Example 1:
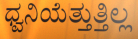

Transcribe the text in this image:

ಧ್ವನಿಯೆತ್ತುತ್ತಿಲ್ಲ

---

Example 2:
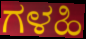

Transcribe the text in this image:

ಗಳಹಿ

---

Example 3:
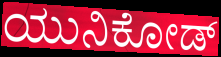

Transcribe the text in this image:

ಯುನಿಕೋಡ್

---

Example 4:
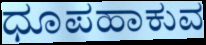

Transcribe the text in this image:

ಧೂಪಹಾಕುವ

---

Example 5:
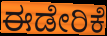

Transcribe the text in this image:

ಈಡೇರಿಕೆ